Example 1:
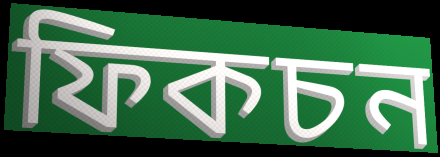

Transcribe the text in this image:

ফিকচন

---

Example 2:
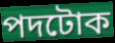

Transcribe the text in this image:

পদটোক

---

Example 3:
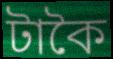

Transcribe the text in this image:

টাকৈ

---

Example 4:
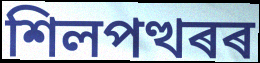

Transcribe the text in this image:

শিলপত্থৰৰ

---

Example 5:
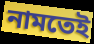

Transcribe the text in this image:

নামতেই